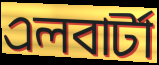
এলবার্টা